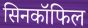
सिनकॉफिल